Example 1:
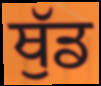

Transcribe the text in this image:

ਥੁੱਡ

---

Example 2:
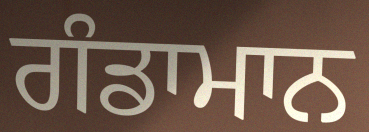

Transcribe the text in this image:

ਗੰਡਾਮਾਨ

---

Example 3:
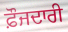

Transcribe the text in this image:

ਫ਼ੌਜਦਾਰੀ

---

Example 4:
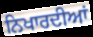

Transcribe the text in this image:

ਨਿਖਾਰਦੀਆਂ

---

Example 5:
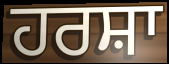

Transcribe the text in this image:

ਹਰਸ਼ਾ